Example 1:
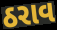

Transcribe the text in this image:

ઠરાવ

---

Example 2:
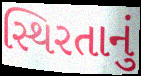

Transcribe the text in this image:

સ્થિરતાનું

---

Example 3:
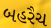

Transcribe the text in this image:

બહરૈચ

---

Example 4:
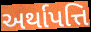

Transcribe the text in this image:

અર્થાપત્તિ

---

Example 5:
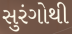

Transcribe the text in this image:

સુરંગોથી